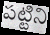
పట్టిని